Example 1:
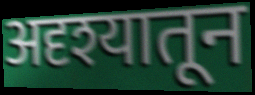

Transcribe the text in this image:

अदृश्यातून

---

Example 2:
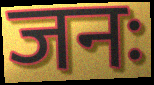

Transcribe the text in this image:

जनः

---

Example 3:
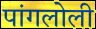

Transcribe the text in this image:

पांगलोली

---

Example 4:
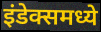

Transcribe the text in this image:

इंडेक्समध्ये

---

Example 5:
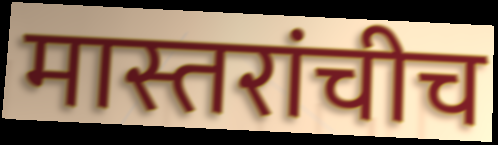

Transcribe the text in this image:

मास्तरांचीच